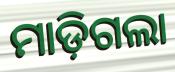
ମାଡ଼ିଗଲା